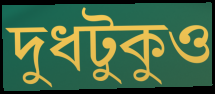
দুধটুকুও